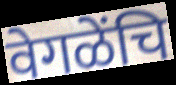
वेगळेंचि